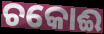
ଚକୋଈ